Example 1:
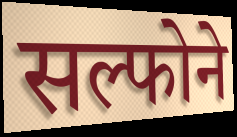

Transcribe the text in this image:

सल्फोने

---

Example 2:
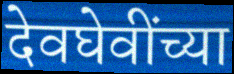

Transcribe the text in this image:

देवघेवींच्या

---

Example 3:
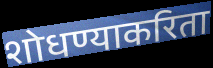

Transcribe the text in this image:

शोधण्याकरिता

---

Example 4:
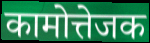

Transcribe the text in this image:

कामोत्तेजक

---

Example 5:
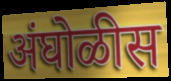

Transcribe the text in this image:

अंघोळीस